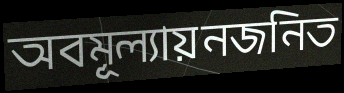
অবমূল্যায়নজনিত